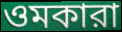
ওমকারা